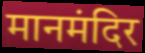
मानमंदिर